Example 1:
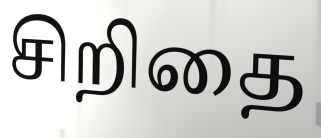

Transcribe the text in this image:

சிறிதை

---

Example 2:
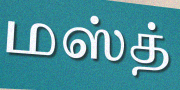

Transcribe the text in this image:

மஸ்த்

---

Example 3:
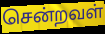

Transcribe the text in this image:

சென்றவள்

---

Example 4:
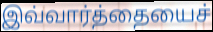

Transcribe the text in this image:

இவ்வார்த்தையைச்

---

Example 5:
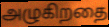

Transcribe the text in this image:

அழுகிறதை